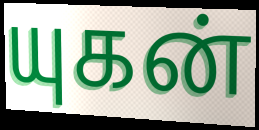
யுகன்